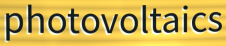
photovoltaics